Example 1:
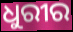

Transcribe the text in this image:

ଧୁରୀର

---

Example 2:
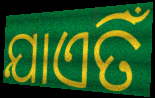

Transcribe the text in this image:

ଯାଏତିଁ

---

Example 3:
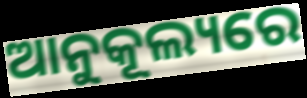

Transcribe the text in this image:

ଆନୁକୂଲ୍ୟରେ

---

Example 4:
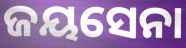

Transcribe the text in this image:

ଜୟସେନା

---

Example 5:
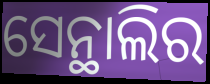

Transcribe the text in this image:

ସେନ୍ଥାଲିର